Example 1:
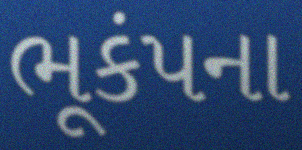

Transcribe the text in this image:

ભૂકંપના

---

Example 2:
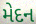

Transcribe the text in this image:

મેદન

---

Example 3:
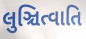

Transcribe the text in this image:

લુઞ્ચિત્વાતિ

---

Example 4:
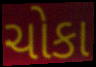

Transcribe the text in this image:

ચોકા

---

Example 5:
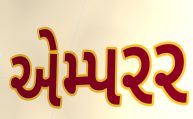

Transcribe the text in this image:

એમ્પરર